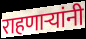
राहणार्‍यांनी